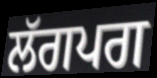
ਲੱਗਪਗ